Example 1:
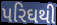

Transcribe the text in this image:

પરિઘથી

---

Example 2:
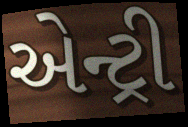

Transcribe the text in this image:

એન્ટ્રી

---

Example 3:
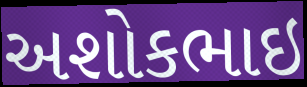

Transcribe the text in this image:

અશોકભાઇ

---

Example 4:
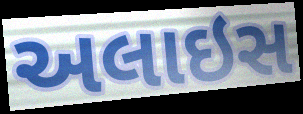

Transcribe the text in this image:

અલાઇસ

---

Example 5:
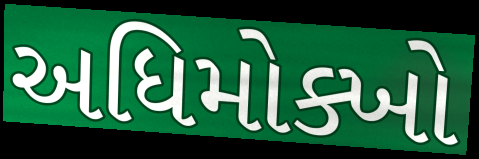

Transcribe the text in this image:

અધિમોક્ખો